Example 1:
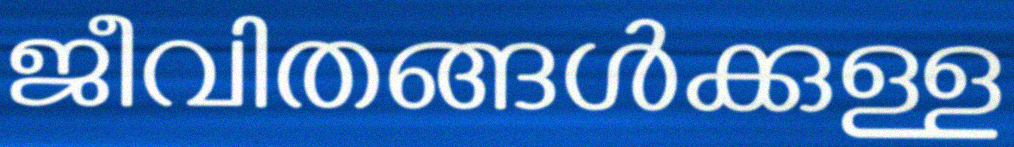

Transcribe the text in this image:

ജീവിതങ്ങൾക്കുള്ള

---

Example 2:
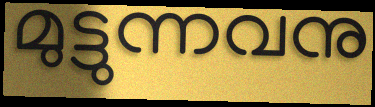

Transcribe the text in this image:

മുട്ടുന്നവനു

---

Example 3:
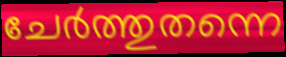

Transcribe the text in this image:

ചേർത്തുതന്നെ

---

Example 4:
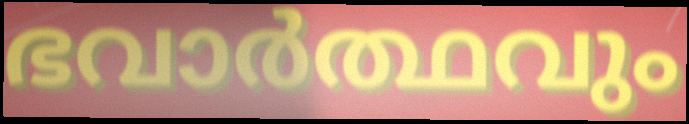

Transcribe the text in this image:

ഭവാർത്ഥവും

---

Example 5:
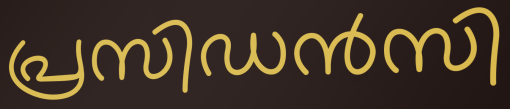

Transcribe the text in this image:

പ്രസിഡൻസി